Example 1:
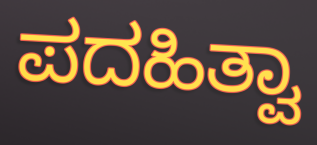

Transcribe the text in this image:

ಪದಹಿತ್ವಾ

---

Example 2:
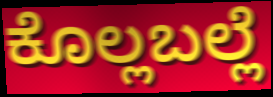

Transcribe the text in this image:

ಕೊಲ್ಲಬಲ್ಲೆ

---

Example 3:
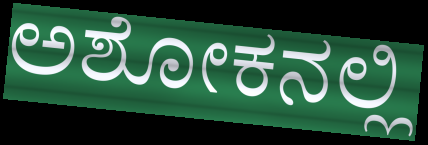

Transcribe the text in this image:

ಅಶೋಕನಲ್ಲಿ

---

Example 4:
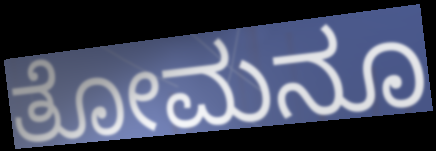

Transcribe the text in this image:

ತೋಮನೂ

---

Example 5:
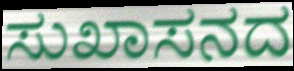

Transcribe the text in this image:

ಸುಖಾಸನದ